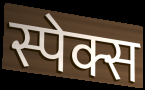
स्पेक्स